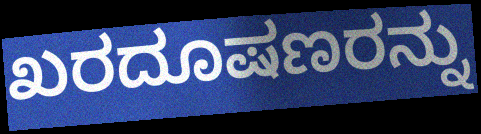
ಖರದೂಷಣರನ್ನು